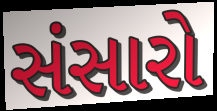
સંસારો